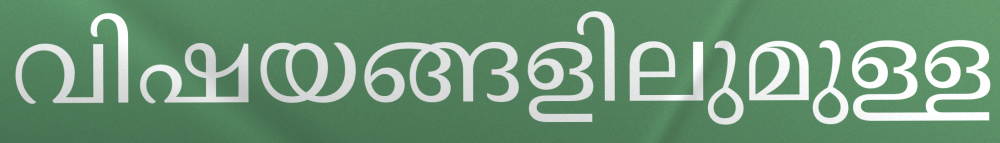
വിഷയങ്ങളിലുമുള്ള